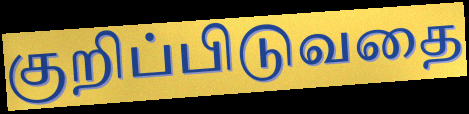
குறிப்பிடுவதை